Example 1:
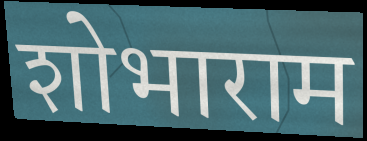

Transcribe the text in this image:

शोभाराम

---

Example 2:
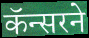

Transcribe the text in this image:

कॅन्सरने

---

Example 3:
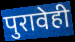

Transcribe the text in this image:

पुरावेही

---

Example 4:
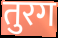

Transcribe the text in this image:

तुरग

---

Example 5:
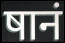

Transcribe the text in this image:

षानं